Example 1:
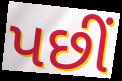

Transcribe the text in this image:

પછીં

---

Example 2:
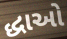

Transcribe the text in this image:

દ્ધાઓ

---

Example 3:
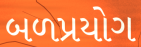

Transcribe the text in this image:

બળપ્રયોગ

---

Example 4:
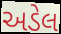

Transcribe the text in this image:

અડેલ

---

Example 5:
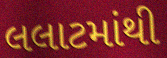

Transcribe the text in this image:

લલાટમાંથી